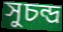
সুচন্দ্র